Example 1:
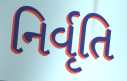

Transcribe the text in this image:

નિર્વૃતિ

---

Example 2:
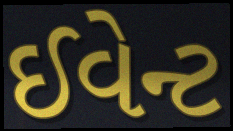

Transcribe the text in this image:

ઈવેન્ટ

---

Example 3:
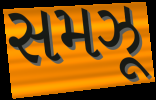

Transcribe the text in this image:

સમઝૂ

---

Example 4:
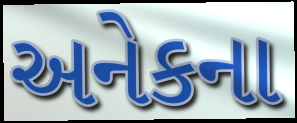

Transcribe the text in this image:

અનેકના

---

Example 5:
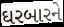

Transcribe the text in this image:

ઘરબારને